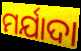
ମର୍ଯାଦା